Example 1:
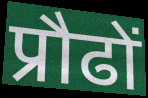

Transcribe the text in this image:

प्रौढों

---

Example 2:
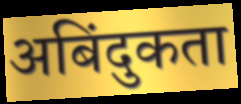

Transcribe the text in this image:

अबिंदुकता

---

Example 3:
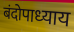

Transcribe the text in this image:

बंदोपाध्‍याय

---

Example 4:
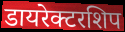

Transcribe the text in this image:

डायरेक्टरशिप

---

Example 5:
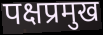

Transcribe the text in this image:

पक्षप्रमुख